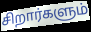
சிறார்களும்